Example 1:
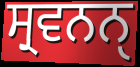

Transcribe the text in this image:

ਸ੍ਰਵਨਨੑ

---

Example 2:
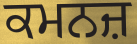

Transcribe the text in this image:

ਕਮਨਜ਼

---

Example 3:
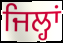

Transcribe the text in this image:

ਜਿਲ੍ਹਾਂ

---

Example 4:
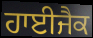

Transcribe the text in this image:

ਹਾਈਜੈਕ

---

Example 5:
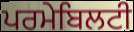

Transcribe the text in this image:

ਪਰਮੇਬਿਲਟੀ